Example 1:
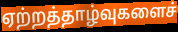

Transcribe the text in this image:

ஏற்றத்தாழ்வுகளைச்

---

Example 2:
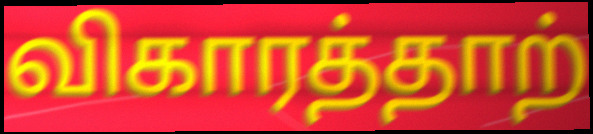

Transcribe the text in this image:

விகாரத்தாற்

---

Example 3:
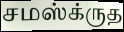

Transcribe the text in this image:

சமஸ்க்ருத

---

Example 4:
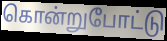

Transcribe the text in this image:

கொன்றுபோட்டு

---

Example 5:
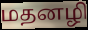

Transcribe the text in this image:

மதனழி